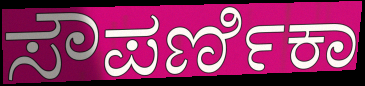
ಸೌಪರ್ಣಿಕಾ